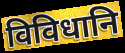
विविधानि